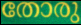
തോരു